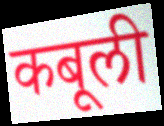
कबूली